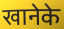
खानेके